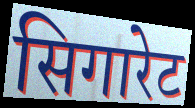
सिगारेट